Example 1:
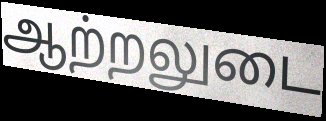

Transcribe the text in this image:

ஆற்றலுடை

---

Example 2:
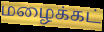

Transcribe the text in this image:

மழைக்கட்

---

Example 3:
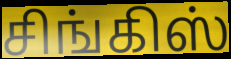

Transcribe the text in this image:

சிங்கிஸ்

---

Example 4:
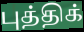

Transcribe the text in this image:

புத்திக்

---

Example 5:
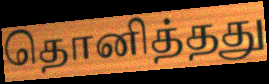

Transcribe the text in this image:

தொனித்தது